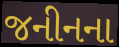
જનીનના